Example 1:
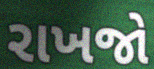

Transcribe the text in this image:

રાખજો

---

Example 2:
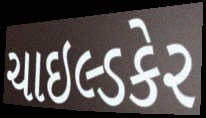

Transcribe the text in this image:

ચાઇલ્ડકેર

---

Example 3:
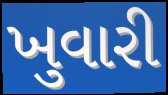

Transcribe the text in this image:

ખુવારી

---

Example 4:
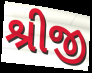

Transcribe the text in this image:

શ્રીજી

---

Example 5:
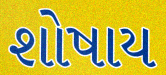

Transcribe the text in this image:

શોષાય